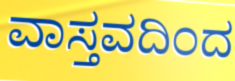
ವಾಸ್ತವದಿಂದ